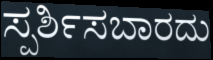
ಸ್ಪರ್ಶಿಸಬಾರದು